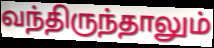
வந்திருந்தாலும்